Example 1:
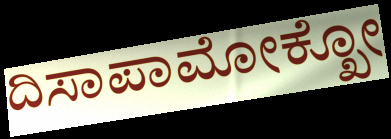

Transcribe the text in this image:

ದಿಸಾಪಾಮೋಕ್ಖೋ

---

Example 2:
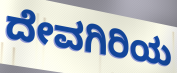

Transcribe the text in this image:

ದೇವಗಿರಿಯ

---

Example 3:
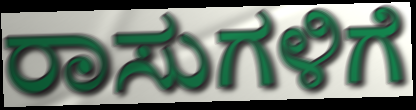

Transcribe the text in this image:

ರಾಸುಗಳಿಗೆ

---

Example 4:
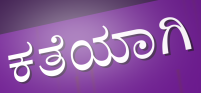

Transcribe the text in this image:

ಕತೆಯಾಗಿ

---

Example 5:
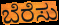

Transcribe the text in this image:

ಬೆರೆಸು